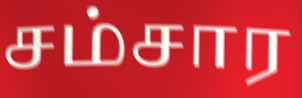
சம்சார